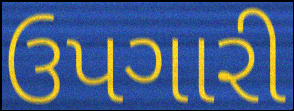
ઉપગારી